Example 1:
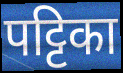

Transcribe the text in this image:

पट्टिका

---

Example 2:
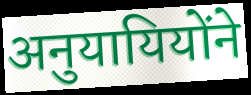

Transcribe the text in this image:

अनुयायियोंने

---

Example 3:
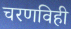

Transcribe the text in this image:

चरणविही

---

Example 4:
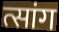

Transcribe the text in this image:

त्सांग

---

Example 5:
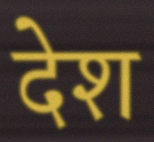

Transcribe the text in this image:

देश